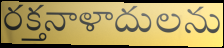
రక్తనాళాదులను